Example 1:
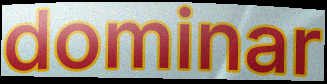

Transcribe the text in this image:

dominar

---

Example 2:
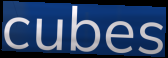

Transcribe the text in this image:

cubes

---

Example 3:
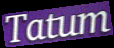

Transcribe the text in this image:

Tatum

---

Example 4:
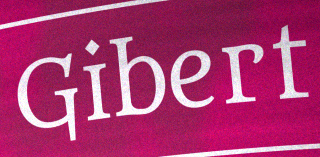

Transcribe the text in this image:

Gibert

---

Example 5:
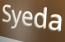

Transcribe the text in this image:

Syeda